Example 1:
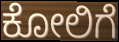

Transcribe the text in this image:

ಕೋಲಿಗೆ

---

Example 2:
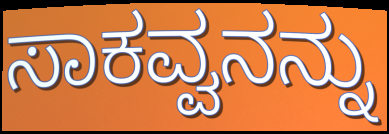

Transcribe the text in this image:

ಸಾಕವ್ವನನ್ನು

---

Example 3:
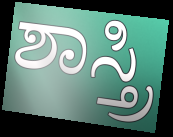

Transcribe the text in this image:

ಶಾಸ್ತ್ರಿ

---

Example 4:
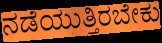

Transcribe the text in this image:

ನಡೆಯುತ್ತಿರಬೇಕು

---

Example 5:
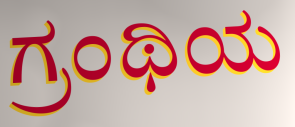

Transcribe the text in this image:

ಗ್ರಂಥಿಯ